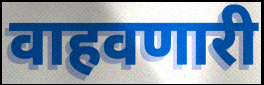
वाहवणारी